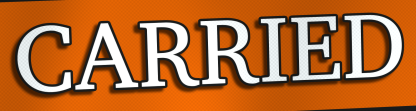
CARRIED